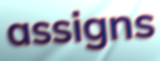
assigns